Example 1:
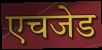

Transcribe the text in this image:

एचजेड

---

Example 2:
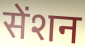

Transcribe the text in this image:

सेंशन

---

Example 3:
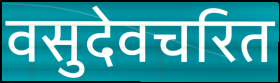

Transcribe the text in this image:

वसुदेवचरित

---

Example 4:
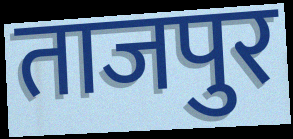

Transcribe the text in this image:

ताजपुर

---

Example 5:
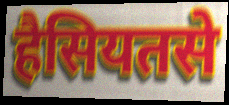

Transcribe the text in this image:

हैसियतसे